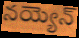
నయ్యెన్